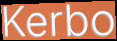
Kerbo